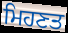
ਮਿਹਣਤ